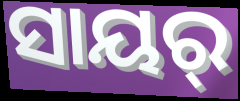
ସାୟର୍